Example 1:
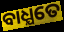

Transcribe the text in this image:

ବାଧ୍ଯତେ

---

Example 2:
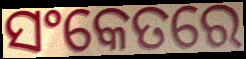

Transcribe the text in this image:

ସଂକେତରେ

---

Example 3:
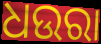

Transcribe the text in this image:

ଧଉରା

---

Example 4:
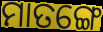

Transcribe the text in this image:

ମାତଙ୍ଗେ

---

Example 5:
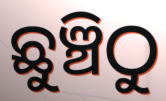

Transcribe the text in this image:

ଛୁଞ୍ଚିଠୁ